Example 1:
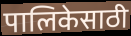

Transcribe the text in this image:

पालिकेसाठी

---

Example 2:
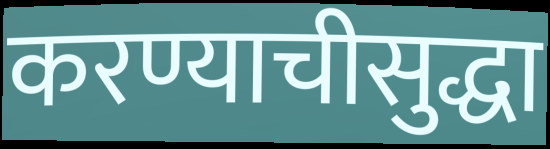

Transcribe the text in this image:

करण्याचीसुद्धा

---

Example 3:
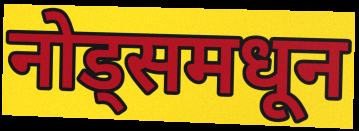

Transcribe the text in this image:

नोड्समधून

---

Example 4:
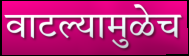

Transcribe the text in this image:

वाटल्यामुळेच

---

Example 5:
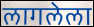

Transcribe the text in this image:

लागलेला